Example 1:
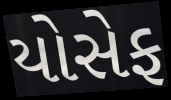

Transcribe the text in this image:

યોસેફ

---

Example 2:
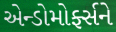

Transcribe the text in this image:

એન્ડોમોર્ફ્સને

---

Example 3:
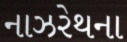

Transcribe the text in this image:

નાઝરેથના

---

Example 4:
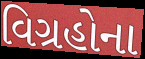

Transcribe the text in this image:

વિગ્રહોના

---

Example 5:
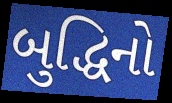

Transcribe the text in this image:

બુદ્ધિનો